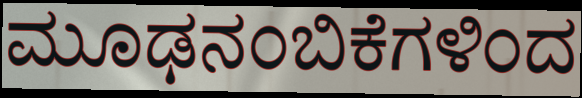
ಮೂಢನಂಬಿಕೆಗಳಿಂದ